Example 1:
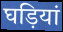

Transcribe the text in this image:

घड़ियां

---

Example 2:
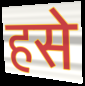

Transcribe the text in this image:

हसे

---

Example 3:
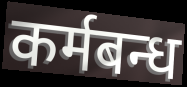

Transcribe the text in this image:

कर्मबन्ध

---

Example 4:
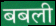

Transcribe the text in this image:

बबली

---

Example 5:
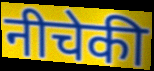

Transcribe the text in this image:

नीचेकी